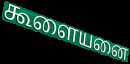
கூளையனை